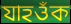
যাহওঁক